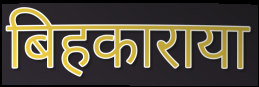
बिहकाराया